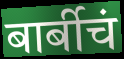
बार्बीचं